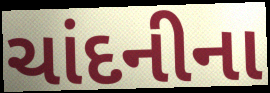
ચાંદનીના